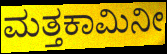
ಮತ್ತಕಾಮಿನೀ